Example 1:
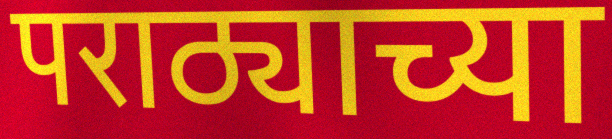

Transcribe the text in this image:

पराठ्याच्या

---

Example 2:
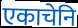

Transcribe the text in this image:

एकाचेनि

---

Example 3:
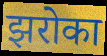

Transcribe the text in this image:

झरोका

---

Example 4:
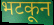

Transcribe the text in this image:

भटकून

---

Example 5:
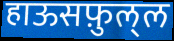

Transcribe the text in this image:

हाऊसफ़ुल्ल